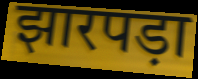
झारपड़ा